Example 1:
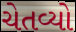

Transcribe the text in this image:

ચેતવ્યો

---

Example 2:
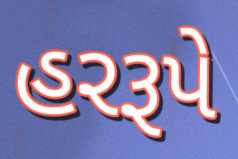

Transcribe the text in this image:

હરરૂપે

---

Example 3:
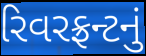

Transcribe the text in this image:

રિવરફ્રન્ટનું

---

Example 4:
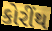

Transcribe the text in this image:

કોરીંથ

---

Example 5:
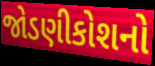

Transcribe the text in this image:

જોડણીકોશનો